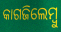
କାଗଜିଲେମ୍ବୁ